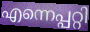
എന്നെപ്പറ്റി